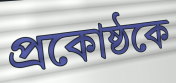
প্রকোষ্ঠকে